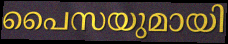
പൈസയുമായി